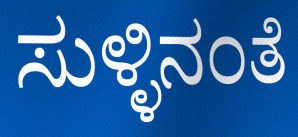
ಸುಳ್ಳಿನಂತೆ